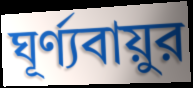
ঘূর্ণ্যবায়ুর